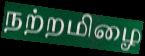
நற்றமிழை